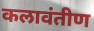
कलावंतीण